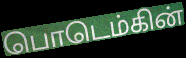
பொடெம்கின்